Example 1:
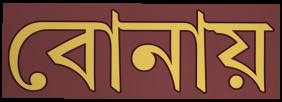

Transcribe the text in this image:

বোনায়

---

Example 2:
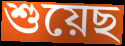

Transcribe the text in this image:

শুয়েছ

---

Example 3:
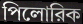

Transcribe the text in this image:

পিলোরিক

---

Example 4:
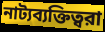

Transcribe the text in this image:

নাট্যব্যক্তিত্বরা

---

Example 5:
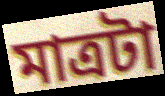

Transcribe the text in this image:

মাত্রটা